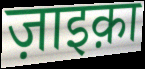
ज़ाइक़ा